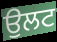
ਉਲਟ